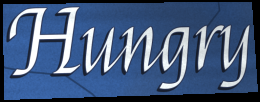
Hungry